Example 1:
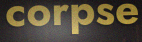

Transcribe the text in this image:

corpse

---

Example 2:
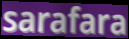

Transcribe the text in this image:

sarafara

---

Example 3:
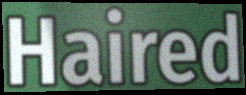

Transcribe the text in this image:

Haired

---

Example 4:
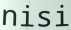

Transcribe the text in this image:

nisi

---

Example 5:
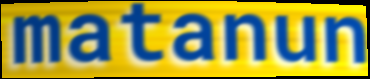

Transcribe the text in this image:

matanun